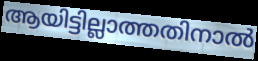
ആയിട്ടില്ലാത്തതിനാൽ